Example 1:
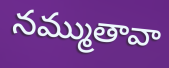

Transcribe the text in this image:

నమ్ముతావా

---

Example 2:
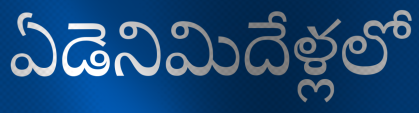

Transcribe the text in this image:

ఏడెనిమిదేళ్లలో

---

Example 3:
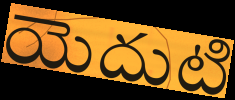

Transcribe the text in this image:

యెదుటి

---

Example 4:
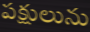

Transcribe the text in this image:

పక్షులును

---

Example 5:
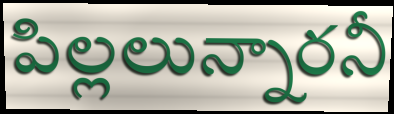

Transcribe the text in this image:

పిల్లలున్నారనీ